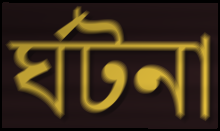
র্ঘটনা